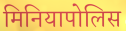
मिनियापोलिस